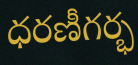
ధరణీగర్భ